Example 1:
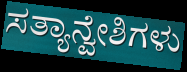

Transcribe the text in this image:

ಸತ್ಯಾನ್ವೇಶಿಗಳು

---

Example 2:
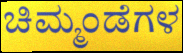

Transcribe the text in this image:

ಚಿಮ್ಮಂಡೆಗಳ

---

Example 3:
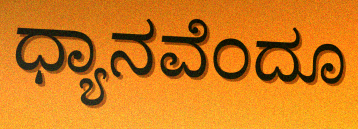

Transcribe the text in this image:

ಧ್ಯಾನವೆಂದೂ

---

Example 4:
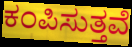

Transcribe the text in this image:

ಕಂಪಿಸುತ್ತವೆ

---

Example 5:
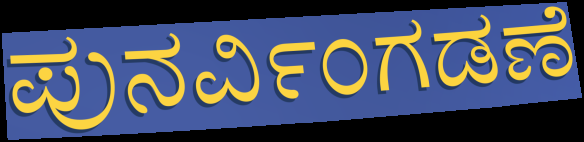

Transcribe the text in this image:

ಪುನರ್ವಿಂಗಡಣೆ